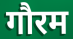
गौरम